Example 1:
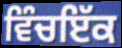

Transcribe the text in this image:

ਵਿੰਚਇੱਕ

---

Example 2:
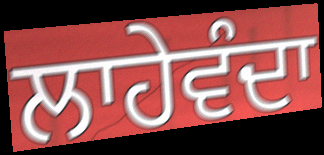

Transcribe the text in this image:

ਲਾਹੇਵੰਦਾ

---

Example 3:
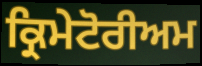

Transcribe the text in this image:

ਕ੍ਰਿਮੇਟੋਰੀਅਮ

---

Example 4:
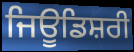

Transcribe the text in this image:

ਜਿਊਡਿਸ਼ਰੀ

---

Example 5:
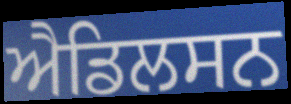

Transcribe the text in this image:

ਐਡਿਲਸਨ